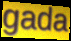
gada